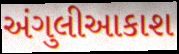
અંગુલીઆકાશ